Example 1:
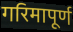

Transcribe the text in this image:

गरिमापूर्ण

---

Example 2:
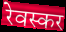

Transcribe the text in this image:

रेवस्कर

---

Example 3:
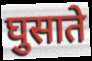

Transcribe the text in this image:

घुसाते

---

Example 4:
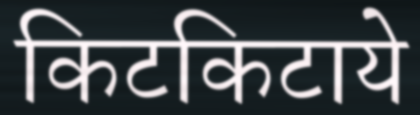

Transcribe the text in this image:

किटकिटाये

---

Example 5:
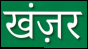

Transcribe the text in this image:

खंज़र